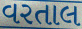
વરતાલ